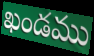
ఖండము